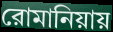
রোমানিয়ায়